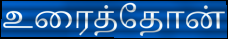
உரைத்தோன்